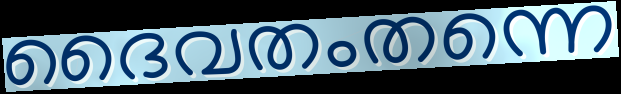
ദൈവതംതന്നെ